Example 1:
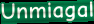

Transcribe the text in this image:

Unmiagal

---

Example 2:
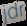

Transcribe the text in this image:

jdr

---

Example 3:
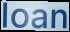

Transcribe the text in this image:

Ioan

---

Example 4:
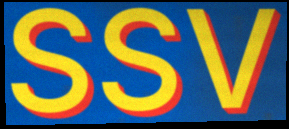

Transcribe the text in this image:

SSV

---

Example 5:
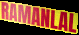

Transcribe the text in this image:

RAMANLAL